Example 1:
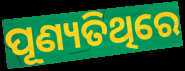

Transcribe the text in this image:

ପୂଣ୍ୟତିଥିରେ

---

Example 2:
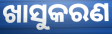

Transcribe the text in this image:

ଖାସୁକରଣ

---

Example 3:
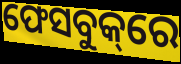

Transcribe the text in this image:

ଫେସବୁକ୍‌ରେ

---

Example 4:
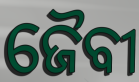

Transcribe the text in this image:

ଜୈବୀ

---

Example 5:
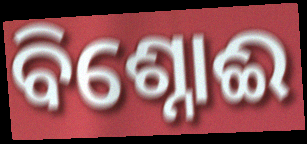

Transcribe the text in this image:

ବିଶ୍ନୋଈ